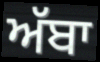
ਅੱਬਾ